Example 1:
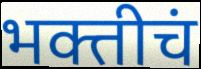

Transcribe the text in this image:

भक्तीचं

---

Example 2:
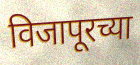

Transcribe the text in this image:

विजापूरच्या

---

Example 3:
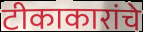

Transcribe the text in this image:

टीकाकारांचे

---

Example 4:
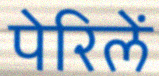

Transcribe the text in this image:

पेरिलें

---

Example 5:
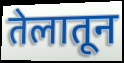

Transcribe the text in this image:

तेलातून